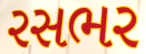
રસભર